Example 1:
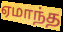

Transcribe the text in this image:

ஏமாந்த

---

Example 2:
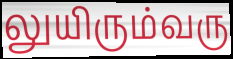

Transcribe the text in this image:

லுயிரும்வரு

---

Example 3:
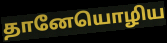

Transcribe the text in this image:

தானேயொழிய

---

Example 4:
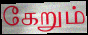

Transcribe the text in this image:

கேறும்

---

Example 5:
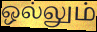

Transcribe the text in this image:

ஒல்லும்